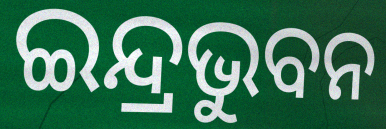
ଇନ୍ଦ୍ରଭୁବନ